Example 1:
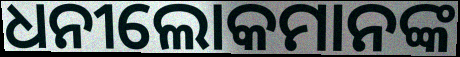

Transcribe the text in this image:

ଧନୀଲୋକମାନଙ୍କ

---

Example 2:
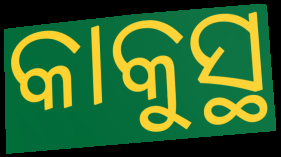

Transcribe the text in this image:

କାକୁସ୍ଥ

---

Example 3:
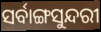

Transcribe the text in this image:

ସର୍ବାଙ୍ଗସୁନ୍ଦରୀ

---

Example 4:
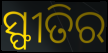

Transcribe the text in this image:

ସ୍ଫୀତିର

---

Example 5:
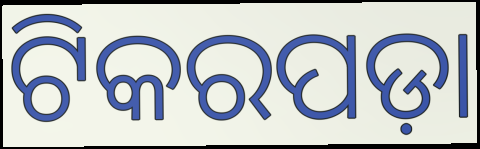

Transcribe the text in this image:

ଟିକରପଡ଼ା